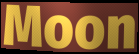
Moon